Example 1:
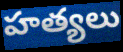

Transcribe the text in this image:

హత్యలు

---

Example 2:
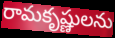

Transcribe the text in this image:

రామకృష్ణులను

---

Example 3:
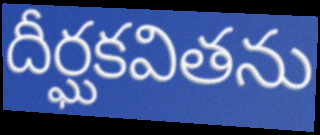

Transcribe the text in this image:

దీర్ఘకవితను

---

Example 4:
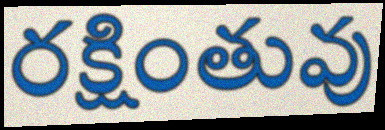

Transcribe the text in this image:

రక్షింతువు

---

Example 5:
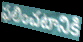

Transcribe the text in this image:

ఫలించటానికి